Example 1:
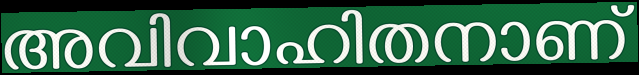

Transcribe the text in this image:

അവിവാഹിതനാണ്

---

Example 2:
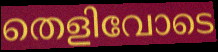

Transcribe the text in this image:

തെളിവോടെ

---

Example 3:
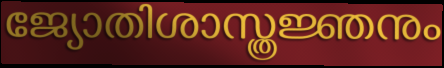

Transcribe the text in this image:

ജ്യോതിശാസ്ത്രജ്ഞനും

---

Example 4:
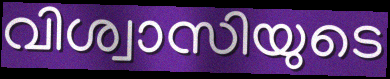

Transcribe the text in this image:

വിശ്വാസിയുടെ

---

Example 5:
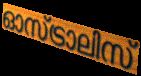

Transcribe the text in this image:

ഓസ്ട്രാലിസ്